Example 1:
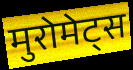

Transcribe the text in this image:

मुरोमेट्स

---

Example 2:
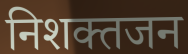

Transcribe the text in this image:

निशक्तजन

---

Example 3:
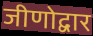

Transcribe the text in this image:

जीणोद्वार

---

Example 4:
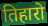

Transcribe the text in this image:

तिहारो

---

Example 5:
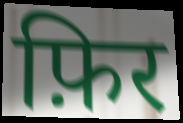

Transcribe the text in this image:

फ़िर